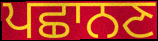
ਪਛਾਨਣ